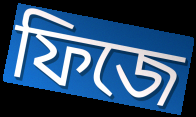
ফিজে